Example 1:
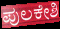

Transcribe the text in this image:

ಪುಲಕೇಶಿ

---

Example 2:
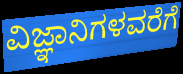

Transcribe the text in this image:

ವಿಜ್ಞಾನಿಗಳವರೆಗೆ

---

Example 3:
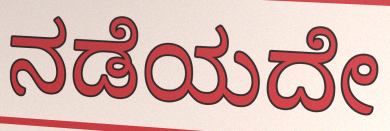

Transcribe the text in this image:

ನಡೆಯದೇ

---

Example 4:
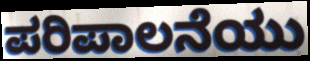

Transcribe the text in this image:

ಪರಿಪಾಲನೆಯು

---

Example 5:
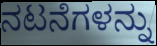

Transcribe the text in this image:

ನಟನೆಗಳನ್ನು